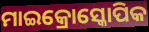
ମାଇକ୍ରୋସ୍କୋପିକ